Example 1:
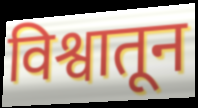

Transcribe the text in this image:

विश्वातून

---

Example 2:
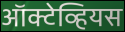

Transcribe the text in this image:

ऑक्टेव्हियस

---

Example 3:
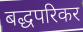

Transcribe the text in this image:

बद्धपरिकर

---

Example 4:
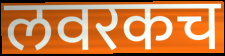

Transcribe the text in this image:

लवरकच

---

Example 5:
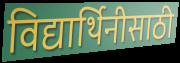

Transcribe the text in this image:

विद्यार्थिनीसाठी